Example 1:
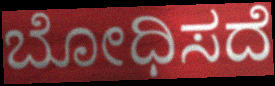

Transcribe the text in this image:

ಬೋಧಿಸದೆ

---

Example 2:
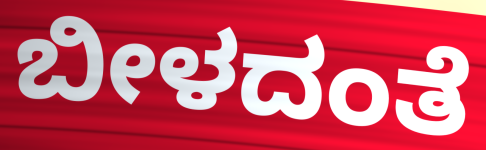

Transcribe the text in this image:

ಬೀಳದಂತೆ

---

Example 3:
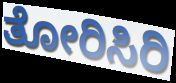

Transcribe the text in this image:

ತೋರಿಸಿರಿ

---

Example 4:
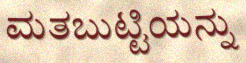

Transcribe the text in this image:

ಮತಬುಟ್ಟಿಯನ್ನು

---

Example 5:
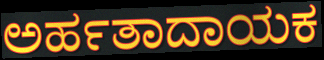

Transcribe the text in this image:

ಅರ್ಹತಾದಾಯಕ